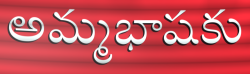
అమ్మభాషకు